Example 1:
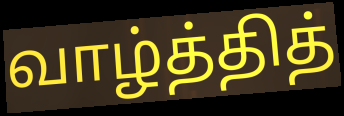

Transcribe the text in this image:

வாழ்த்தித்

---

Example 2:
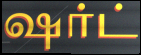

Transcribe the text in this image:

ஷர்ட்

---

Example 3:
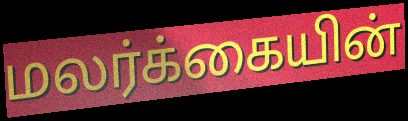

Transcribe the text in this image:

மலர்க்கையின்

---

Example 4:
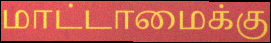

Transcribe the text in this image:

மாட்டாமைக்கு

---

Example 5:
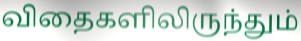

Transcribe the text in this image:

விதைகளிலிருந்தும்